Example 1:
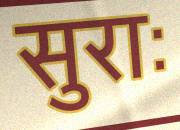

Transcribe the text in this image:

सुराः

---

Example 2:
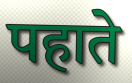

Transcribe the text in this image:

पहाते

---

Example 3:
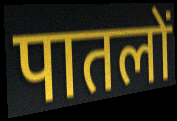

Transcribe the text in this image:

पातलों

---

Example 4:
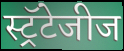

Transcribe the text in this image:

स्ट्रॅटेजीज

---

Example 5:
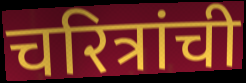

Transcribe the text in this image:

चरित्रांची